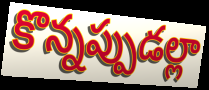
కొన్నప్పుడల్లా